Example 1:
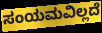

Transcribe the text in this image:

ಸಂಯಮವಿಲ್ಲದೆ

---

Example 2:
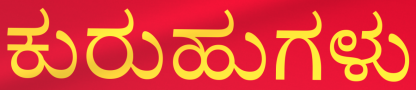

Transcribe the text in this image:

ಕುರುಹುಗಳು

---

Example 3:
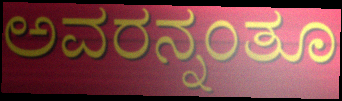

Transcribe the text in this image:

ಅವರನ್ನಂತೂ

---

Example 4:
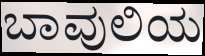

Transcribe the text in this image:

ಬಾವುಲಿಯ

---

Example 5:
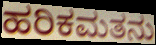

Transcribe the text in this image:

ಹರಿಕಮತನು